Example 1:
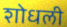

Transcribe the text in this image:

शोधली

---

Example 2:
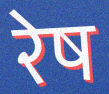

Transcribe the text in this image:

रेष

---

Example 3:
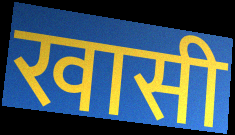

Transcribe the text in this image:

खासी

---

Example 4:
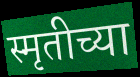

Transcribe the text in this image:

स्मृतीच्या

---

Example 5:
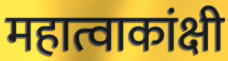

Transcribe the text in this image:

महात्वाकांक्षी